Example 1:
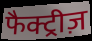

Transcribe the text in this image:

फैक्ट्रीज़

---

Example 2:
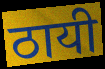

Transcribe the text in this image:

ठायी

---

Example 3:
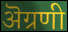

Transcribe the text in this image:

ऄग्रणी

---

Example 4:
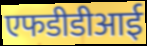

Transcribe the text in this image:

एफडीडीआई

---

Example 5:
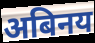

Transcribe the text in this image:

अबिनय